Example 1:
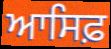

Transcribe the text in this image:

ਆਸਿਫ਼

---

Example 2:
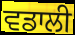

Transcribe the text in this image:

ਵਡਾਲੀ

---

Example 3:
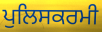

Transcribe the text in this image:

ਪੁਲਿਸਕਰਮੀ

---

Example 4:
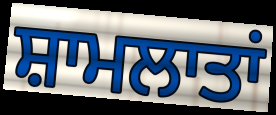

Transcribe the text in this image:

ਸ਼ਾਮਲਾਤਾਂ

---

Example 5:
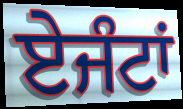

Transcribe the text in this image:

ਏਜੰਟਾਂ